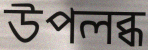
উপলব্ধ